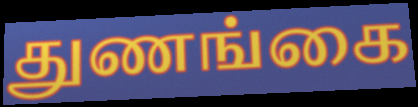
துணங்கை